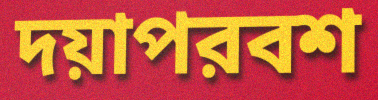
দয়াপরবশ